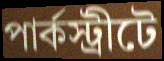
পার্কস্ট্রীটে